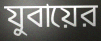
যুবায়ের